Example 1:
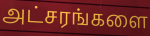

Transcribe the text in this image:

அட்சரங்களை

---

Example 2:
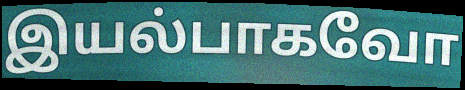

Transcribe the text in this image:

இயல்பாகவோ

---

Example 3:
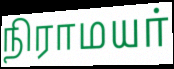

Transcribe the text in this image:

நிராமயர்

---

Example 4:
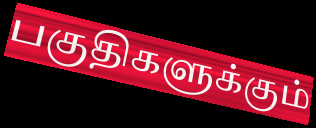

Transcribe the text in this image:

பகுதிகளுக்கும்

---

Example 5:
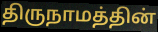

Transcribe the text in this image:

திருநாமத்தின்